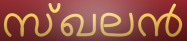
സ്ഖലൻ